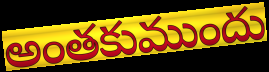
అంతకుముందు